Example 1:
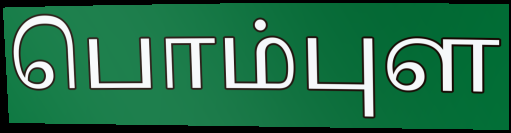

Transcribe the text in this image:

பொம்புள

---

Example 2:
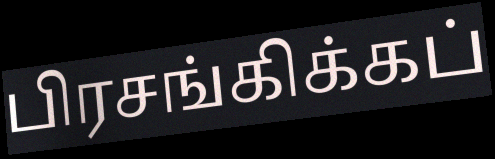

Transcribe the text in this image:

பிரசங்கிக்கப்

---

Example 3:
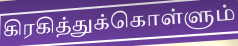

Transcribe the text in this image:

கிரகித்துக்கொள்ளும்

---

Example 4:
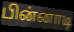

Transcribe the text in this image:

பின்னாடி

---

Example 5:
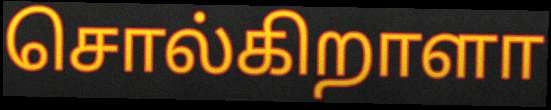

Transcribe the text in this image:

சொல்கிறாளா